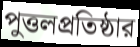
পুত্তলপ্রতিষ্ঠার